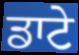
ਡਾਟੇ